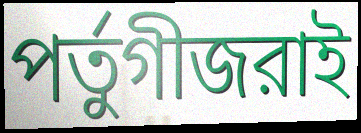
পর্তুগীজরাই